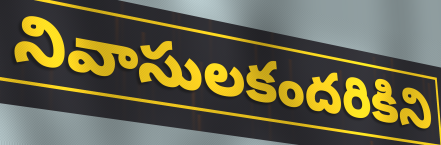
నివాసులకందరికిని